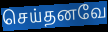
செய்தனவே